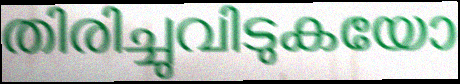
തിരിച്ചുവിടുകയോ